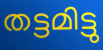
തട്ടമിട്ടു